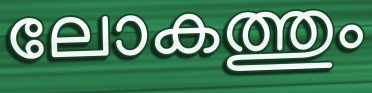
ലോകത്തും